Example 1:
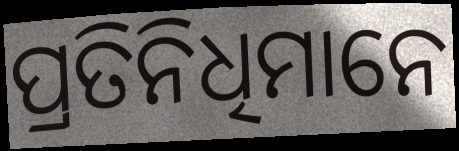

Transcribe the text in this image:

ପ୍ରତିନିଧିମାନେ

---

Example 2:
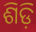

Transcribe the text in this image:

ଶିଡ଼ି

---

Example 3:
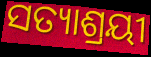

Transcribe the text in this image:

ସତ୍ୟାଶ୍ରୟୀ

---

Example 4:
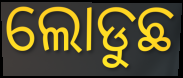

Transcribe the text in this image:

ଲୋଡୁଛ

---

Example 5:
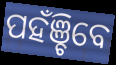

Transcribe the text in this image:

ପହଁଞ୍ଚିବେ